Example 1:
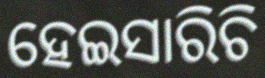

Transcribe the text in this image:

ହେଇସାରିଚି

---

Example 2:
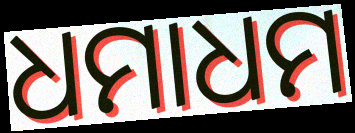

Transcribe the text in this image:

ଧମାଧମ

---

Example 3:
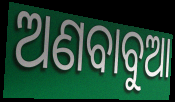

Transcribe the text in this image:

ଅଣବାବୁଆ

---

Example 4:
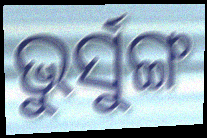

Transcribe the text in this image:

ଭୁର୍ସୁଙ୍ଗ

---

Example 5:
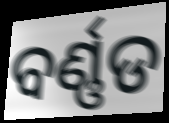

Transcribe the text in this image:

ବର୍ଣ୍ଣଡ